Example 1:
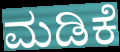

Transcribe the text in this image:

ಮಡಿಕೆ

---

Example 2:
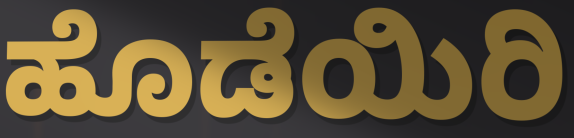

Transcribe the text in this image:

ಹೊಡೆಯಿರಿ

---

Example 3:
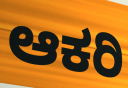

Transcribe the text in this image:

ಆಕರಿ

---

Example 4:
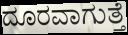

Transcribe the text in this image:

ದೂರವಾಗುತ್ತೆ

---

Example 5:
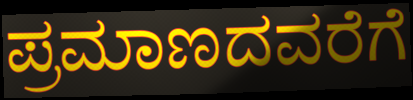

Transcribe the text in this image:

ಪ್ರಮಾಣದವರೆಗೆ